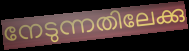
നേടുന്നതിലേക്കു